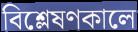
বিশ্লেষণকালে